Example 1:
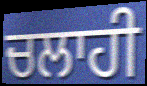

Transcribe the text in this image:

ਚਲਾਹੀ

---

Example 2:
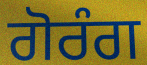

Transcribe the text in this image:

ਗੋਰੰਗ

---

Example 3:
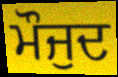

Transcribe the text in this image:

ਮੌਜੁਦ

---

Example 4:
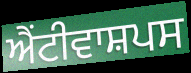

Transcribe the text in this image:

ਐਂਟੀਵਾਸ਼ਪਸ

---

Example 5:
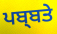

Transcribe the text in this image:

ਪਬ੍ਬਤੇ